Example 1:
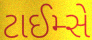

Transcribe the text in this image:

ટાઈમ્સે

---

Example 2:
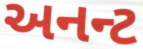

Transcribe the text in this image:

અનન્ટ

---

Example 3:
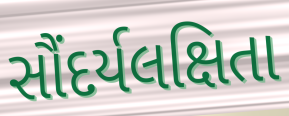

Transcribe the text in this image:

સૌંદર્યલક્ષિતા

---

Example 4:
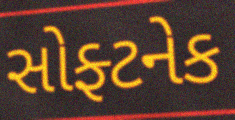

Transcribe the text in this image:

સોફ્ટનેક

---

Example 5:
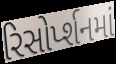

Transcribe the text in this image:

રિસોર્પ્શનમાં